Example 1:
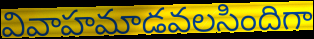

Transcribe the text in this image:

వివాహమాడవలసిందిగా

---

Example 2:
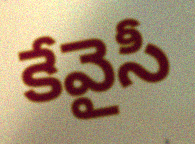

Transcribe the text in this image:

కేవైసీ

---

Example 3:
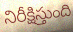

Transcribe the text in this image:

నిరీక్షిస్తుంది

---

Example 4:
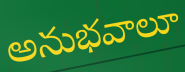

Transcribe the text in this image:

అనుభవాలూ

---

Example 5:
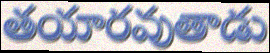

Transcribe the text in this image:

తయారవుతాడు